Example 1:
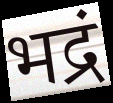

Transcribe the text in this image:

भद्रं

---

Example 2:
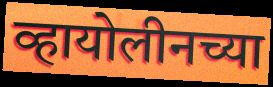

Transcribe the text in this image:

व्हायोलीनच्या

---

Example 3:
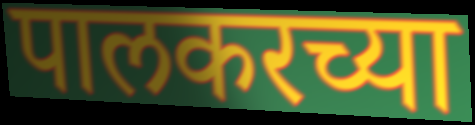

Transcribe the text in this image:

पालकरच्या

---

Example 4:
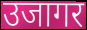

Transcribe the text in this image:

उजागर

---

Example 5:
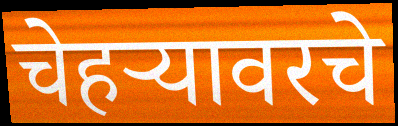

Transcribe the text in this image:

चेहऱ्यावरचे